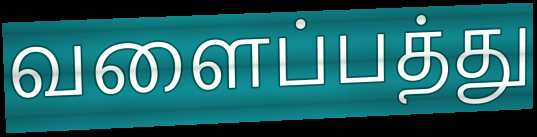
வளைப்பத்து